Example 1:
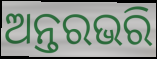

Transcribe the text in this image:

ଅନ୍ତରଭରି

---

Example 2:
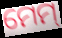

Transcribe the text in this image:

ମେମ୍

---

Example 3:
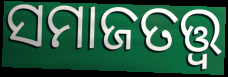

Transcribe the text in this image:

ସମାଜତତ୍ତ୍ବ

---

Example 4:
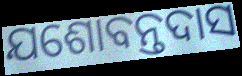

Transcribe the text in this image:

ଯଶୋବନ୍ତଦାସ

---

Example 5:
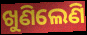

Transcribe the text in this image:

ଖୁଣିଲେଣି